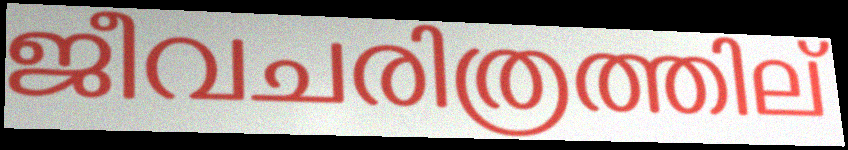
ജീവചരിത്രത്തില്